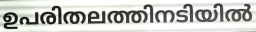
ഉപരിതലത്തിനടിയിൽ